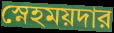
স্নেহময়দার